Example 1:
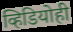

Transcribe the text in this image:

व्हिडियोही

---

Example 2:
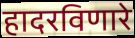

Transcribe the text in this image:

हादरविणारे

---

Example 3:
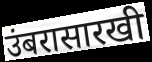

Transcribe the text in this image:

उंबरासारखी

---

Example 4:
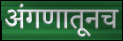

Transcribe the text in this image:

अंगणातूनच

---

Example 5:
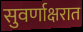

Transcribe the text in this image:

सुवर्णाक्षरात